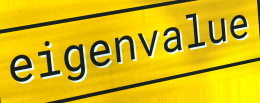
eigenvalue